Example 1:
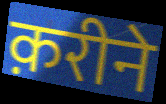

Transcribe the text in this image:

क़रीने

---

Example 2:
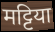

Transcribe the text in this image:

मट्टिया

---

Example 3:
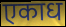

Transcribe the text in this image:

एकाध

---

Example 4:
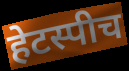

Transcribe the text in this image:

हेटस्पीच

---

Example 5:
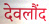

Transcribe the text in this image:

देवलौंद